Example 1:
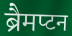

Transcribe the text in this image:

ब्रैमप्टन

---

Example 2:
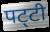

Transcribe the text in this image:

पट्‌टी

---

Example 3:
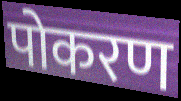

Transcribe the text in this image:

पोकरण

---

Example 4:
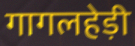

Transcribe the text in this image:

गागलहेड़ी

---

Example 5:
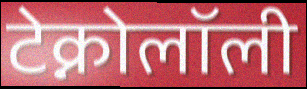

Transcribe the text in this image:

टेक्नोलॉली